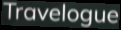
Travelogue